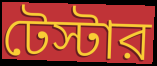
টেস্টার